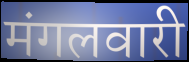
मंगलवारी